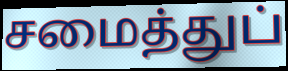
சமைத்துப்